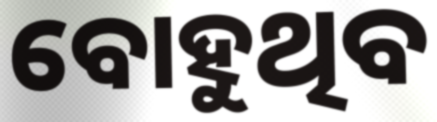
ବୋହୁଥିବ